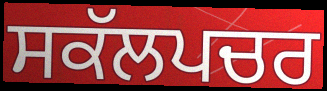
ਸਕੱਲਪਚਰ